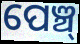
ପେଞ୍ଚ୍